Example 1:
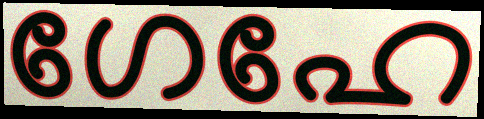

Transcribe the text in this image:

ഗേഹേ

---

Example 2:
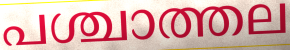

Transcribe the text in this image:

പശ്ചാത്തല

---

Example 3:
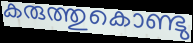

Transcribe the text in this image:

കരുത്തുകൊണ്ടു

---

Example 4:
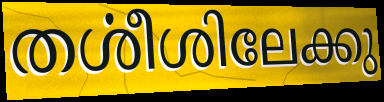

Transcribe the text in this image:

തൎശീശിലേക്കു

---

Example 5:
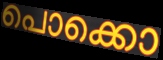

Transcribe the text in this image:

പൊക്കൊ